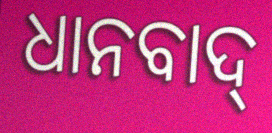
ଧାନବାଦ୍